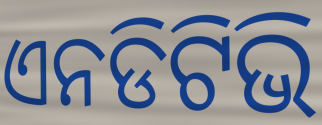
ଏନଡିଟିଭି